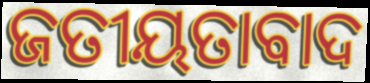
ଜତୀୟତାବାଦ